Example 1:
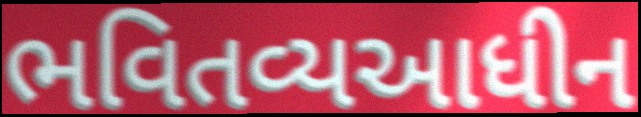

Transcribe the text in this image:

ભવિતવ્યઆધીન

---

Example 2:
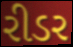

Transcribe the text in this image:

રીડર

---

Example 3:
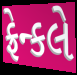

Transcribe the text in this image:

ફ્રેન્કલે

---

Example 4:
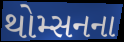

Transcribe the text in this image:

થોમ્સનના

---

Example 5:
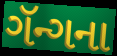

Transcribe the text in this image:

ગૅન્ગના